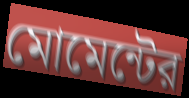
মোমেন্টের